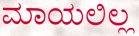
ಮಾಯಲಿಲ್ಲ